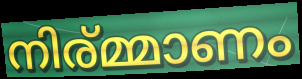
നിര്മ്മാണം